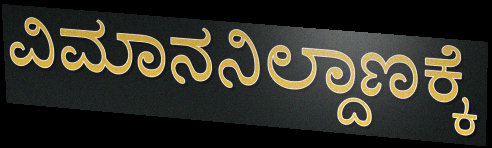
ವಿಮಾನನಿಲ್ದಾಣಕ್ಕೆ